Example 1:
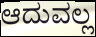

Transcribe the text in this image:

ಆದುವಲ್ಲ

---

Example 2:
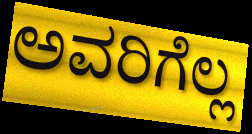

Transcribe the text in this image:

ಅವರಿಗೆಲ್ಲ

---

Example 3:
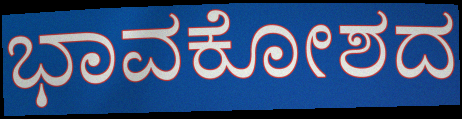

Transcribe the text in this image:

ಭಾವಕೋಶದ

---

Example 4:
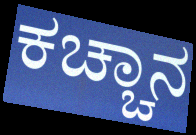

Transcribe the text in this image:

ಕಚ್ಚಾನ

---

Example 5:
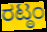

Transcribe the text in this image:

ರಟ್ಠಂ